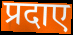
प्रदाए